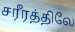
சரீரத்திலே